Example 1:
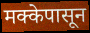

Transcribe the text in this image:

मक्केपासून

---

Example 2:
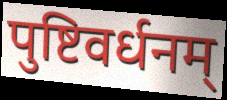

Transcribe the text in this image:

पुष्टिवर्धनम्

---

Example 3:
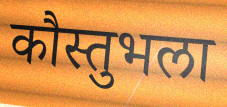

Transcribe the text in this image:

कौस्तुभला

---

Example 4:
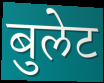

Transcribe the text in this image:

बुलेट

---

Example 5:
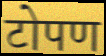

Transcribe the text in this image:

टोपण